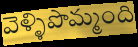
వెళ్ళిపొమ్మంది